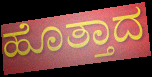
ಹೊತ್ತಾದ